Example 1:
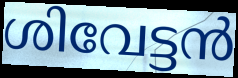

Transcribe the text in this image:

ശിവേട്ടൻ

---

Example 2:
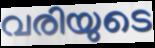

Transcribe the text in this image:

വരിയുടെ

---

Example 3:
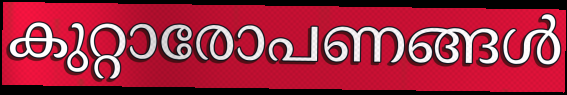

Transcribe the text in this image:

കുറ്റാരോപണങ്ങൾ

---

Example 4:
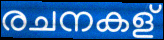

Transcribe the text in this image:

രചനകള്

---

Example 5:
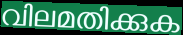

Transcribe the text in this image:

വിലമതിക്കുക